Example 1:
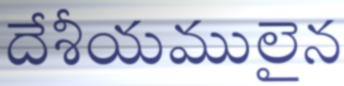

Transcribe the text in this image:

దేశీయములైన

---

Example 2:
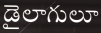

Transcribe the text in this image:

డైలాగులూ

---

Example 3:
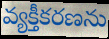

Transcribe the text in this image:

వ్యక్తీకరణను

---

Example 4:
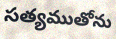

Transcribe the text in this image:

సత్యముతోను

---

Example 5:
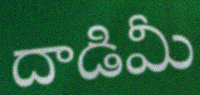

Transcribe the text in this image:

దాడిమీ